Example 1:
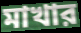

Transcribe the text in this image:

মাখার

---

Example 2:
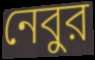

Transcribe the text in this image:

নেবুর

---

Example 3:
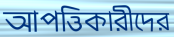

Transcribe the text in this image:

আপত্তিকারীদের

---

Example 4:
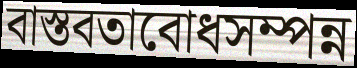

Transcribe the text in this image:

বাস্তবতাবোধসম্পন্ন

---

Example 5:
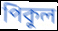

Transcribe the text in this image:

পিকুল